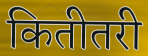
कितीतरी